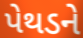
પેથડને